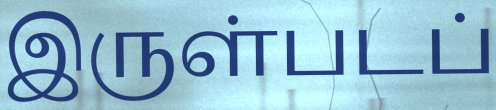
இருள்படப்